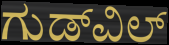
ಗುಡ್‌ವಿಲ್